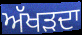
ਅੱਖੜਦਾ